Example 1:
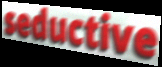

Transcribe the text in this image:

seductive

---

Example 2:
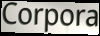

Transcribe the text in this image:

Corpora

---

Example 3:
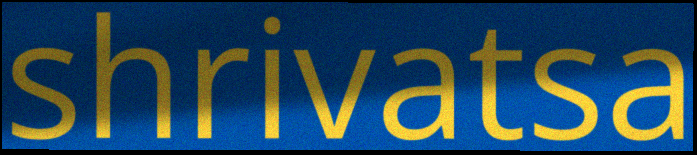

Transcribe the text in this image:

shrivatsa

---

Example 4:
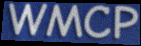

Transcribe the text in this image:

WMCP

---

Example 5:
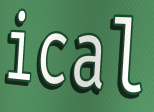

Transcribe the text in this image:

ical